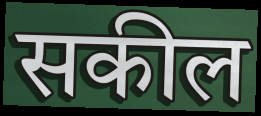
सकील